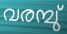
വരമ്പു്